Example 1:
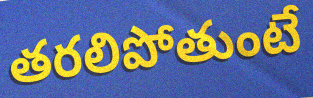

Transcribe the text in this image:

తరలిపోతుంటే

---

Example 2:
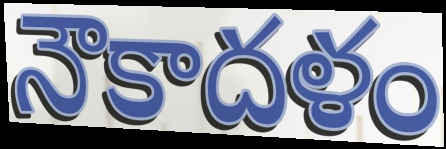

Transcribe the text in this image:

నౌకాదళం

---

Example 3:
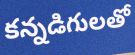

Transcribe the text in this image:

కన్నడిగులతో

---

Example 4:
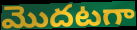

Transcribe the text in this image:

మొదటగా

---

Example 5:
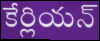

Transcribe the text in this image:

కేర్లియన్